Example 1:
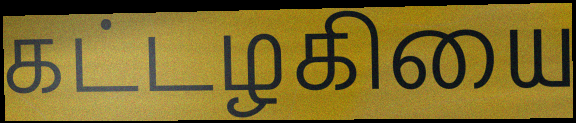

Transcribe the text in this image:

கட்டழகியை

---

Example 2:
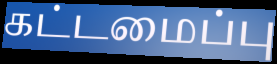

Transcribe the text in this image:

கட்டமைப்பு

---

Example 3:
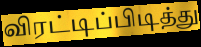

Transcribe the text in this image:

விரட்டிப்பிடித்து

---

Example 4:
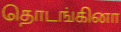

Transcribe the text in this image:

தொடங்கினா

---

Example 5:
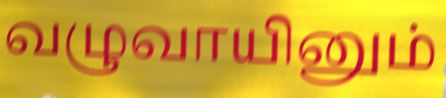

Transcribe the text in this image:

வழுவாயினும்